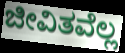
ಜೀವಿತವೆಲ್ಲ